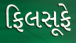
ફિલસૂફે